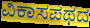
ವಿಕಾಸಪಥದ